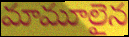
మామూలైన